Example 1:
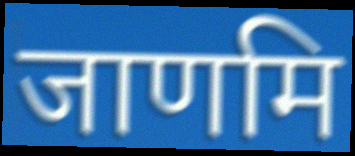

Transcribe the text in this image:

जाणमि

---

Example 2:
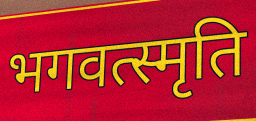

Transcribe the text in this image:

भगवत्स्मृति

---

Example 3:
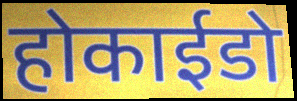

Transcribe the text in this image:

होकाईडो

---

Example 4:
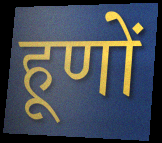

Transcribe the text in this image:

हूणों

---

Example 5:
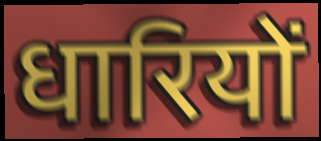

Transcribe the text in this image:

धारियों